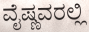
ವೈಷ್ಣವರಲ್ಲಿ